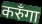
करुँगा